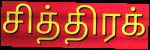
சித்திரக்